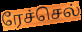
ரேச்செல்